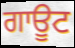
ਗਾਊਟ